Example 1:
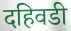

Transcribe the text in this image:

दहिवडी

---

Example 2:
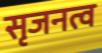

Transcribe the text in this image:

सृजनत्व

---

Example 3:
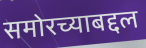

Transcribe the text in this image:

समोरच्याबद्दल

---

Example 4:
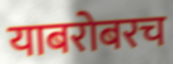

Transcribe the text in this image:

याबरोबरच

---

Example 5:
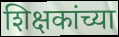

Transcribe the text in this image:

शिक्षकांच्या